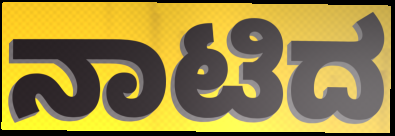
ನಾಟಿದ